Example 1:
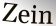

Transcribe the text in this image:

Zein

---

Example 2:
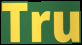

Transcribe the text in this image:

Tru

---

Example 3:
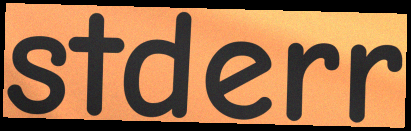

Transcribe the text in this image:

stderr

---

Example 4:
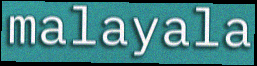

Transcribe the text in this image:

malayala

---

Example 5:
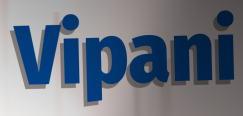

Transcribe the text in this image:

Vipani